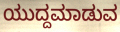
ಯುದ್ದಮಾಡುವ